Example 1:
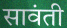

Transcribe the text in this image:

सावंती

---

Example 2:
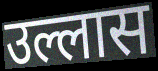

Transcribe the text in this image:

उल्लास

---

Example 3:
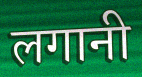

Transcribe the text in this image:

लगानी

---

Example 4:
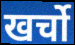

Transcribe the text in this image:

खर्चो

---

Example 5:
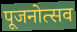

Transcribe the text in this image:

पूजनोत्सव